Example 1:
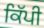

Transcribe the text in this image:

ਕਿੱਪੀ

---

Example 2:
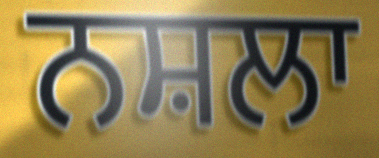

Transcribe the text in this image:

ਨਸ਼ਲਾ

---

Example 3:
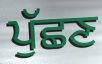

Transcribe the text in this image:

ਪੁੱਛਣ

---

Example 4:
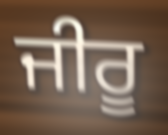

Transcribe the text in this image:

ਜੀਰੂ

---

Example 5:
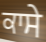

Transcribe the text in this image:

ਕਾਸੇ